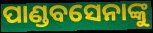
ପାଣ୍ଡବସେନାଙ୍କୁ